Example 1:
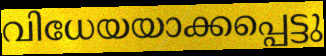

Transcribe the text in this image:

വിധേയയാക്കപ്പെട്ടു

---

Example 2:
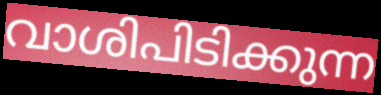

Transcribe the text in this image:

വാശിപിടിക്കുന്ന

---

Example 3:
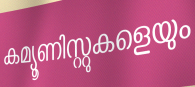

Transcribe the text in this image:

കമ്യൂണിസ്റ്റുകളെയും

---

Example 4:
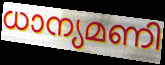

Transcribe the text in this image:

ധാന്യമണി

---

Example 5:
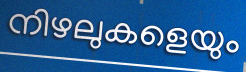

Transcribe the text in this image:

നിഴലുകളെയും